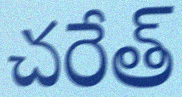
చరేత్